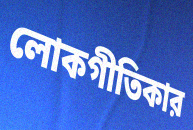
লোকগীতিকার